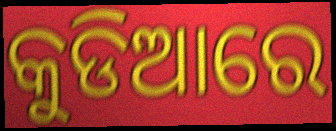
କୁଡିଆରେ